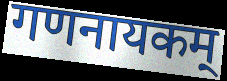
गणनायकम्